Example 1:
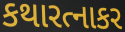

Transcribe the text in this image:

કથારત્નાકર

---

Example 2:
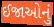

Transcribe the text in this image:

ઈજાઓનું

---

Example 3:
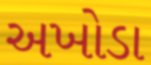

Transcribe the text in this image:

અખોડા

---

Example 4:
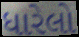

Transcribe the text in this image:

ધારેલો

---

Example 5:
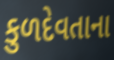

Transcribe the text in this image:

કુળદેવતાના